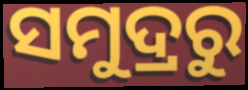
ସମୁଦ୍ରରୁ